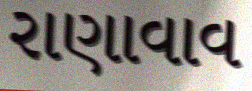
રાણાવાવ